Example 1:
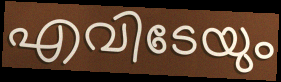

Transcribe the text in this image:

എവിടേയും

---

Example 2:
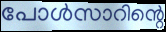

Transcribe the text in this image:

പോൾസാറിന്റെ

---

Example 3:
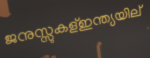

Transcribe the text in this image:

ജനുസ്സുകള്ഇന്ത്യയില്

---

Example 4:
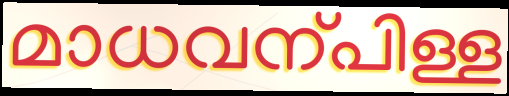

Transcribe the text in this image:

മാധവന്പിള്ള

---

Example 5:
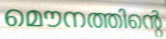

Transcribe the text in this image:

മൌനത്തിന്റെ